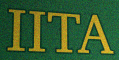
IITA